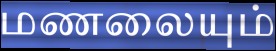
மணலையும்